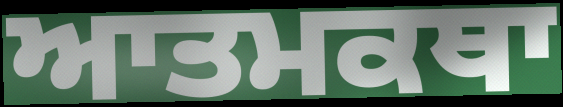
ਆਤਮਕਥਾ